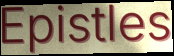
Epistles